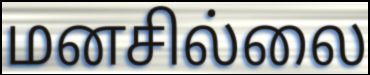
மனசில்லை